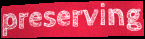
preserving